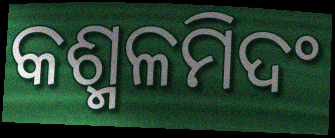
କଶ୍ମଳମିଦଂ